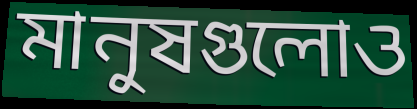
মানুষগুলোও